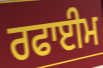
ਰਫਾਈਮ